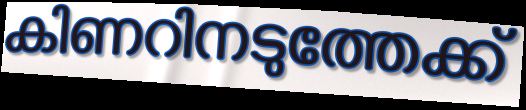
കിണറിനടുത്തേക്ക്